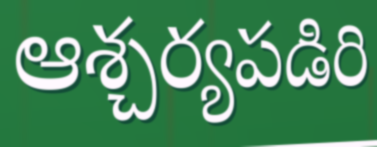
ఆశ్చర్యపడిరి